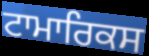
ਟਾਮਾਰਿਕਸ